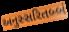
અનુસ્સરિતબ્બં